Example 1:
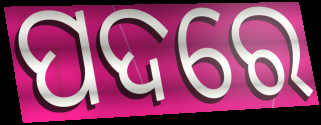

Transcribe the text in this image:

ପଦରେ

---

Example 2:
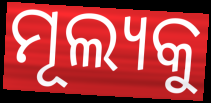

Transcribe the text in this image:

ମୂଲ୍ୟକୁ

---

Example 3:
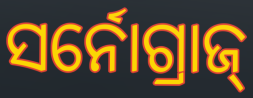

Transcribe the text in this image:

ସର୍ନୋଗ୍ରାଜ୍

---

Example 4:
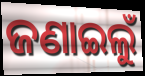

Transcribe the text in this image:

ଜଣାଇଲୁଁ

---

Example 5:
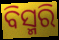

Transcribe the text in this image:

ବିସ୍ମରି